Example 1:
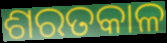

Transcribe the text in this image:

ଶରତକାଳ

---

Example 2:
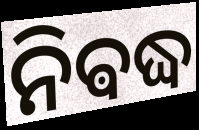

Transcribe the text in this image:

ନିଵଦ୍ଧ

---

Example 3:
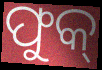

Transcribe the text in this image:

ଫୁକ୍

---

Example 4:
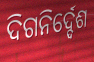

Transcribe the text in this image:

ଦିଗନିର୍ଦ୍ଦେଶ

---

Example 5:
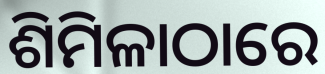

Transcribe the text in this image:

ଶିମିଳାଠାରେ